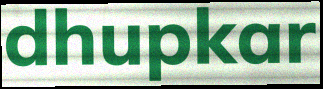
dhupkar